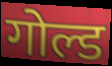
गोल्ड